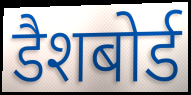
डैशबोर्ड